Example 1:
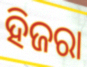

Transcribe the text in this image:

ହିଜରା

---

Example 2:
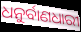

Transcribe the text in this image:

ଧନୁର୍ବାଣଧାରୀ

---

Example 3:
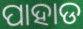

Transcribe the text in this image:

ପାହାଡ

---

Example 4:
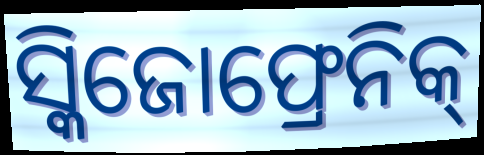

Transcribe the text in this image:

ସ୍କିଜୋଫ୍ରେନିକ୍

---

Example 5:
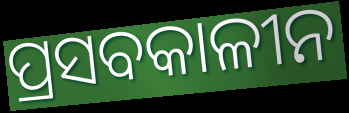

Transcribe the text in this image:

ପ୍ରସବକାଳୀନ